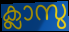
ക്ലാസു